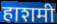
हाशमी